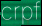
crpf